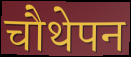
चौथेपन